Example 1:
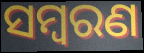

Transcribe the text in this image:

ସମ୍ୱରଣ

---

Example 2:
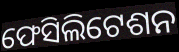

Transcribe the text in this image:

ଫେସିଲିଟେଶନ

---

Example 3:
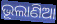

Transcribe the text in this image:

ଭୂଲାଣିଆ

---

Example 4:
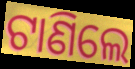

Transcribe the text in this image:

ଟାଣିଲେ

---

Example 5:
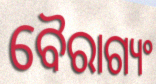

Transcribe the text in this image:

ବୈରାଗ୍ୟଂ